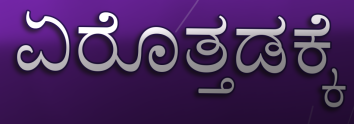
ಏರೊತ್ತಡಕ್ಕೆ